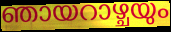
ഞായറാഴ്ചയും